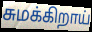
சுமக்கிறாய்